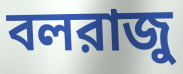
বলরাজু